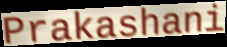
Prakashani